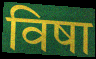
विषा